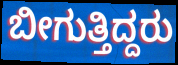
ಬೀಗುತ್ತಿದ್ದರು